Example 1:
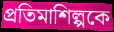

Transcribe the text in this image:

প্রতিমাশিল্পকে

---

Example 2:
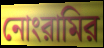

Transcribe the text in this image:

নোংরামির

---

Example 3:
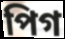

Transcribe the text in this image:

পিগ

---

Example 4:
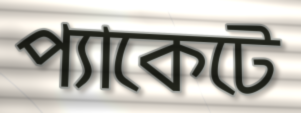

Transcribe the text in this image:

প্যাকেটে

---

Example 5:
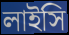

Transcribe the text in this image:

লাইসি